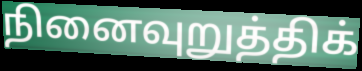
நினைவுறுத்திக்